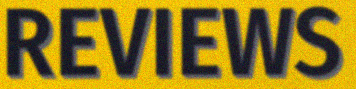
REVIEWS